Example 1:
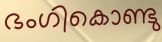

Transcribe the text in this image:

ഭംഗികൊണ്ടു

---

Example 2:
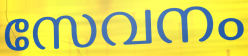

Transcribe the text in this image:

സേവനം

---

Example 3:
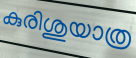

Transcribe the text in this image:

കുരിശുയാത്ര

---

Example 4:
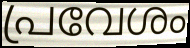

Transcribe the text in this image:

പ്രവേശം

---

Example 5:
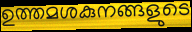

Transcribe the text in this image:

ഉത്തമശകുനങ്ങളുടെ